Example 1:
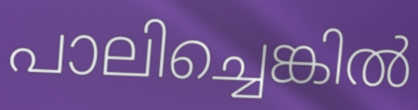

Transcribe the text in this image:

പാലിച്ചെങ്കിൽ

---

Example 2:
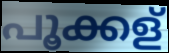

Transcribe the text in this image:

പൂക്കള്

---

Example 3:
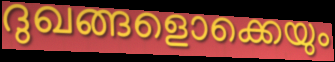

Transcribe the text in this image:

ദുഖങ്ങളൊക്കെയും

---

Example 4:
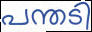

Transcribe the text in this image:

പന്തടി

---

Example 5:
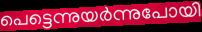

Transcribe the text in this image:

പെട്ടെന്നുയർന്നുപോയി